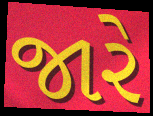
જારે